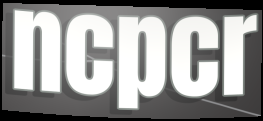
ncpcr